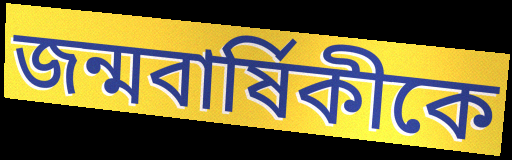
জন্মবার্ষিকীকে